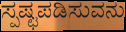
ಸ್ಪಷ್ಟಪಡಿಸುವನು